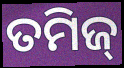
ତମିଜ୍